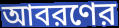
আবরণের